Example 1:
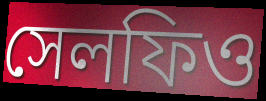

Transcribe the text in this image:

সেলফিও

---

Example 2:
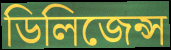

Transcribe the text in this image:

ডিলিজেন্স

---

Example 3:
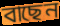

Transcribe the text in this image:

বাছেন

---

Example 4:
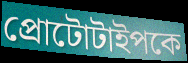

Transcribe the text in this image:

প্রোটোটাইপকে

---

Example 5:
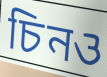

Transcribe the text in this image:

চিনও